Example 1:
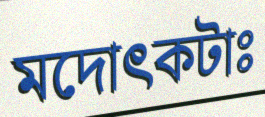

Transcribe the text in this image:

মদোৎকটাঃ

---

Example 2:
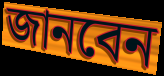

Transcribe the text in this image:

জানবেন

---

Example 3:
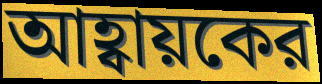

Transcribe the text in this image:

আহ্বায়কের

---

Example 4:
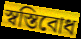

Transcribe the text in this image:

স্বস্তিবোধ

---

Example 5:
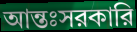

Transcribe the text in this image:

আন্তঃসরকারি